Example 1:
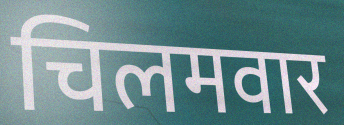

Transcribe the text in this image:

चिलमवार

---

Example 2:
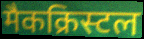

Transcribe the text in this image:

मैकक्रिस्टल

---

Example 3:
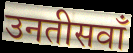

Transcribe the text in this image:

उनतीसवाँ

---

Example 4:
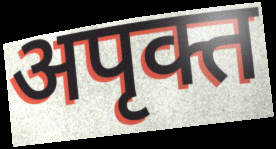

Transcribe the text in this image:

अपृक्त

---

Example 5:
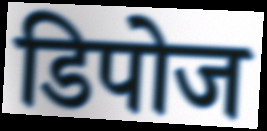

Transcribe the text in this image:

डिपोज